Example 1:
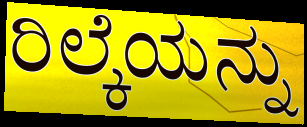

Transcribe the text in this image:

ರಿಲ್ಕೆಯನ್ನು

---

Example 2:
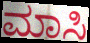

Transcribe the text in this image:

ಮಾಸಿ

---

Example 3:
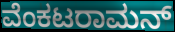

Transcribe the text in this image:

ವೆಂಕಟರಾಮನ್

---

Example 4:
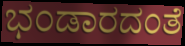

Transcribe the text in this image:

ಭಂಡಾರದಂತೆ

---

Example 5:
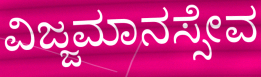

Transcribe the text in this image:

ವಿಜ್ಜಮಾನಸ್ಸೇವ